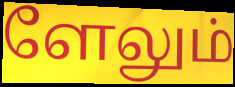
ளேலும்